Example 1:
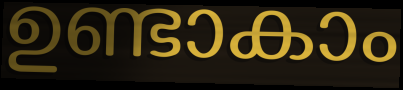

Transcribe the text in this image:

ഉണ്ടാകാം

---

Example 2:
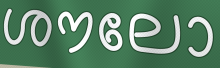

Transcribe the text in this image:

ശൗലോ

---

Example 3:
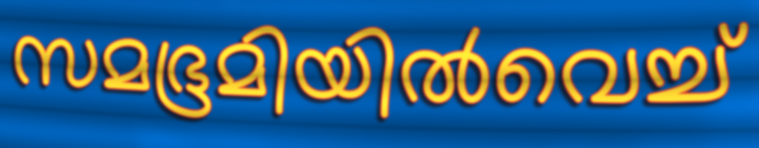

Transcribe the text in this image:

സമഭൂമിയിൽവെച്ച്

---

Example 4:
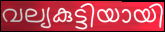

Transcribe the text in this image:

വല്യകുട്ടിയായി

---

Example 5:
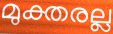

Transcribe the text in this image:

മുക്തരല്ല